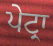
ਪੇਟ੍ਰਾ